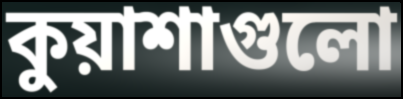
কুয়াশাগুলো